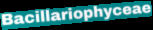
Bacillariophyceae